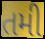
તમી